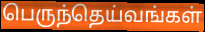
பெருந்தெய்வங்கள்